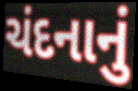
ચંદનાનું